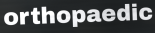
orthopaedic